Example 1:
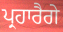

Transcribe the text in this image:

ਪ੍ਰਹਾਰੈਗੇ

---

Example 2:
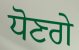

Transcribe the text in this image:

ਧੋਣਗੇ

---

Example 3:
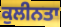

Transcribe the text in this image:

ਕੁਲੀਨਤਾ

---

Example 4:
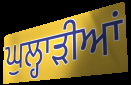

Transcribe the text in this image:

ਘੁਲ੍ਹਾੜੀਆਂ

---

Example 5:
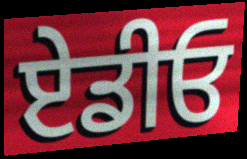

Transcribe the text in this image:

ਏਡੀਓ